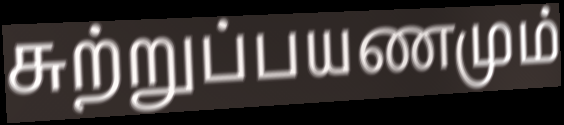
சுற்றுப்பயணமும்